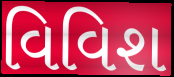
વિવિશ